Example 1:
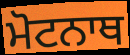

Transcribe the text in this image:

ਮੋਟਨਾਥ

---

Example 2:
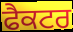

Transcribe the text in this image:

ਫੈਕਟਰ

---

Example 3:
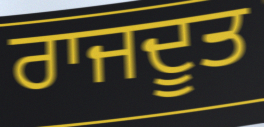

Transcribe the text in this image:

ਰਾਜਦੂਤ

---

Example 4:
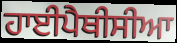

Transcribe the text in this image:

ਹਾਈਪੈਥੀਸੀਆ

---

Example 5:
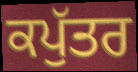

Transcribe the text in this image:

ਕਪੁੱਤਰ